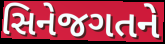
સિનેજગતને